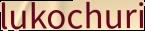
lukochuri